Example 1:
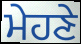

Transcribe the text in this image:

ਮੇਹਣੇ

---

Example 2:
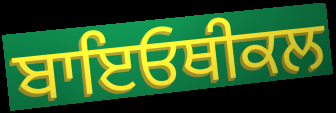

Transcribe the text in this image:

ਬਾਇਓਥੀਕਲ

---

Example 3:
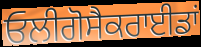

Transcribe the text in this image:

ਓਲੀਗੋਸੈਕਰਾਈਡਾਂ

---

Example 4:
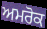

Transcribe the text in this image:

ਅਮਰੋਕ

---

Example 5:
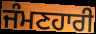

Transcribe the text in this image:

ਜੰਮਣਹਾਰੀ